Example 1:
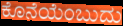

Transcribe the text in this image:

ಕೊನೆಯೆಂಬುದು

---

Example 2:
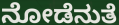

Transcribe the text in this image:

ನೋಡೆನುತೆ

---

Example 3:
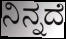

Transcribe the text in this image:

ನಿನ್ನದೆ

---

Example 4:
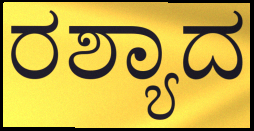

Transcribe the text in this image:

ರಶ್ಯಾದ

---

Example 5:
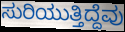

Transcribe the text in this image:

ಸುರಿಯುತ್ತಿದ್ದೆವು